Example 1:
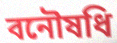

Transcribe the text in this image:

বনৌষধি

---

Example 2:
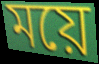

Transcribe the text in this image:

ময়ে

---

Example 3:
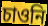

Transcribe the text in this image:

চাওনি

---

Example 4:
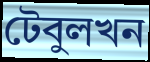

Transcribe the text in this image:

টেবুলখন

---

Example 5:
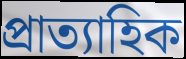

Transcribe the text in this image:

প্ৰাত্যাহিক